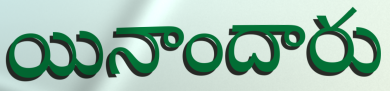
యినాందారు